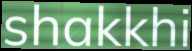
shakkhi